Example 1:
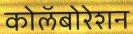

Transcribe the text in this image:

कोलॅबोरेशन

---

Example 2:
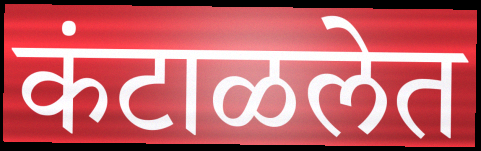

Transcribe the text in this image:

कंटाळलेत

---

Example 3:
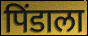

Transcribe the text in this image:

पिंडाला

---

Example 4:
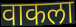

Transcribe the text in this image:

वाकला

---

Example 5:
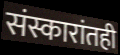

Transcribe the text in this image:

संस्कारांतही